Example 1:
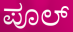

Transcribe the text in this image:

ಪೂಲ್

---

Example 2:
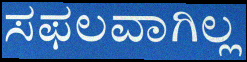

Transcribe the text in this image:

ಸಫಲವಾಗಿಲ್ಲ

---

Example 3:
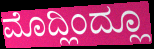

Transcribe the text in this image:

ಮೊದ್ಲಿಂದ್ಲೂ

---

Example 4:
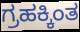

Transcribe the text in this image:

ಗ್ರಹಕ್ಕಿಂತ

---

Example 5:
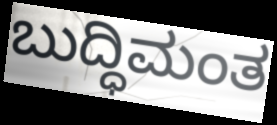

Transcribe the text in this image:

ಬುದ್ಧಿಮಂತ